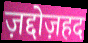
ज़द्दोज़हद